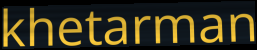
khetarman